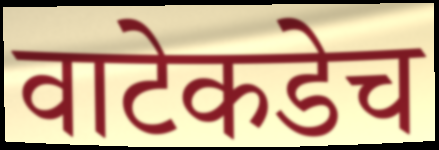
वाटेकडेच